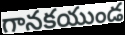
గానకయుండ